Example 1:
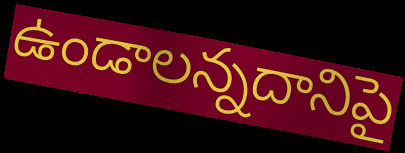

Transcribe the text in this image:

ఉండాలన్నదానిపై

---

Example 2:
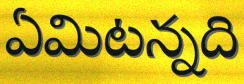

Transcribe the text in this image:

ఏమిటన్నది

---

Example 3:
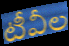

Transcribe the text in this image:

టీవీల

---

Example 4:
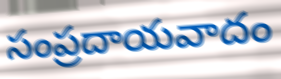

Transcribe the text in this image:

సంప్రదాయవాదం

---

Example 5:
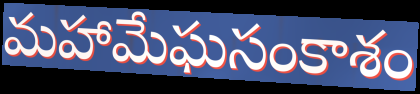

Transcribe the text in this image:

మహామేఘసంకాశం